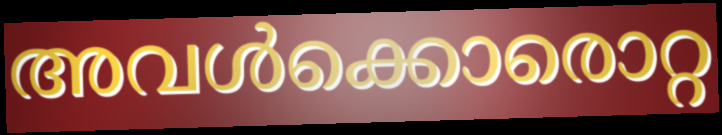
അവൾക്കൊരൊറ്റ